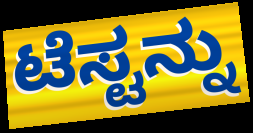
ಟೆಸ್ಟನ್ನು